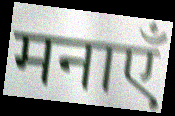
मनाएँ